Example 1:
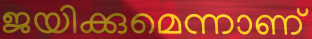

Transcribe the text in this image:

ജയിക്കുമെന്നാണ്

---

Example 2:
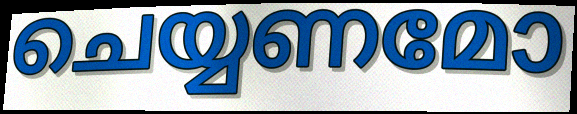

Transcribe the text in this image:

ചെയ്യണമോ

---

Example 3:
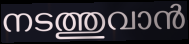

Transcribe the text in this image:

നടത്തുവാൻ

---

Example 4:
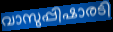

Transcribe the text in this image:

വാസുപ്പിഷാരടി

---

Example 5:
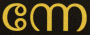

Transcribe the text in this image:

ന്നേ